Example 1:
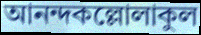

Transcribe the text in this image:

আনন্দকল্লোলাকুল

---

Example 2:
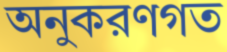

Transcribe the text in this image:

অনুকরণগত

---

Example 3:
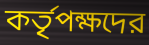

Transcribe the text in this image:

কর্তৃপক্ষদের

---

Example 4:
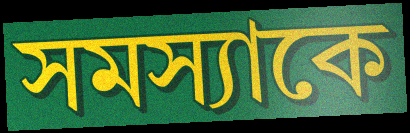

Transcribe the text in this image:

সমস্যাকে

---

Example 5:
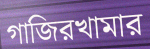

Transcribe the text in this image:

গাজিরখামার